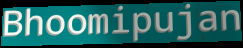
Bhoomipujan